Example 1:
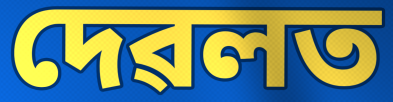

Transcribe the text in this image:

দেৱলত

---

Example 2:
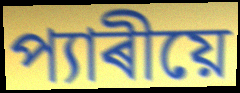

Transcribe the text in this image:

প্যাৰীয়ে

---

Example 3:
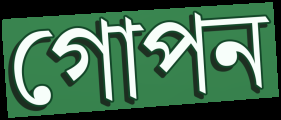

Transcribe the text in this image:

গোপন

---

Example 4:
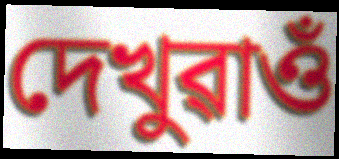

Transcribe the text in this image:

দেখুৱাওঁ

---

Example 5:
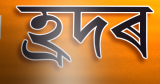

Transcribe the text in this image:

হ্ৰদৰ